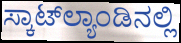
ಸ್ಕಾಟ್‌ಲ್ಯಾಂಡಿನಲ್ಲಿ